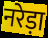
नरेड़ा